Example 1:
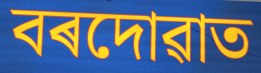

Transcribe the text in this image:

বৰদোৱাত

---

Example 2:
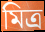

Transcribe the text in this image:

মিত্ৰ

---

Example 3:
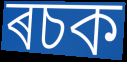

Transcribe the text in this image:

ৰচক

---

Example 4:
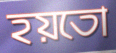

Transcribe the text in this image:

হয়তো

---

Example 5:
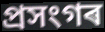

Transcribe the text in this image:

প্ৰসংগৰ